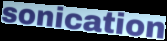
sonication